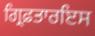
ਗ੍ਰਿਫ਼ਤਾਰਇਸ